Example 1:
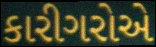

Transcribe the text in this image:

કારીગરોએ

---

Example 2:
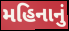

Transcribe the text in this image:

મહિનાનું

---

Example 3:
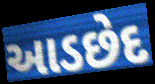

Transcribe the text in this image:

આડછેદ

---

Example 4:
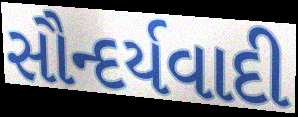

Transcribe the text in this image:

સૌન્દર્યવાદી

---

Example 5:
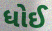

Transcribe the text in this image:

ધોઈ